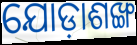
ଯୋଡ଼ାଶଙ୍ଖ